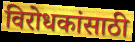
विरोधकांसाठी